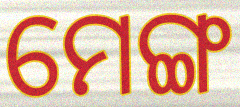
ମେଙ୍ଗ